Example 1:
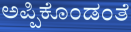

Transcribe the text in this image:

ಅಪ್ಪಿಕೊಂಡಂತೆ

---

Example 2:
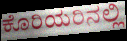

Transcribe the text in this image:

ಕೊರಿಯರಿನಲ್ಲಿ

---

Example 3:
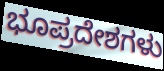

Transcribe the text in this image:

ಭೂಪ್ರದೇಶಗಳು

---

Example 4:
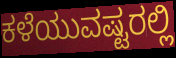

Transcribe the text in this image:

ಕಳೆಯುವಷ್ಟರಲ್ಲಿ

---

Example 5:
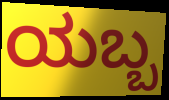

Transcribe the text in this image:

ಯಬ್ಬ